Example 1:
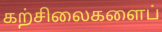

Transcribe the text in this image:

கற்சிலைகளைப்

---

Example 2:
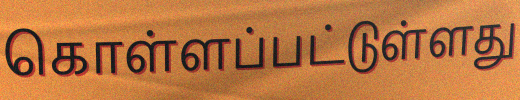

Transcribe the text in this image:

கொள்ளப்பட்டுள்ளது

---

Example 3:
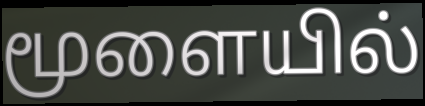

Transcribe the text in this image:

மூளையில்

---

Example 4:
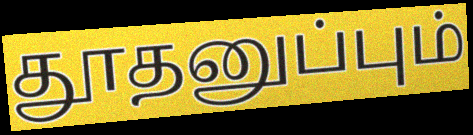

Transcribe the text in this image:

தூதனுப்பும்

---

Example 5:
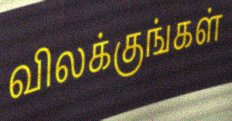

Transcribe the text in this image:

விலக்குங்கள்